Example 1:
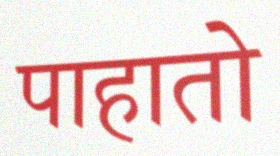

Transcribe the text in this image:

पाहातो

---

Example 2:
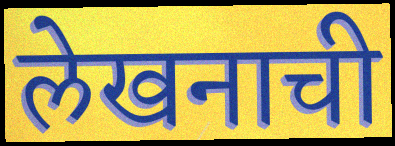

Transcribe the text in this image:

लेखनाची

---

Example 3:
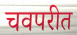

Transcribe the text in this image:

चवपरीत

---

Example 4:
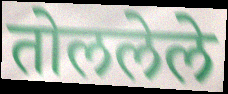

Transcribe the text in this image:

तोललेले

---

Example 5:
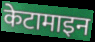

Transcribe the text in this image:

केटामाइन